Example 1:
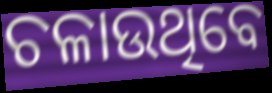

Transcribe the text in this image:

ଚଳାଉଥିବେ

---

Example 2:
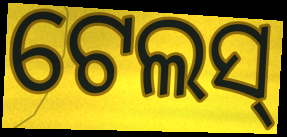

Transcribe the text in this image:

ଟେଲସ୍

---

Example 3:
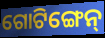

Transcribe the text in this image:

ଗୋଟିଙ୍ଗେନ୍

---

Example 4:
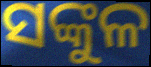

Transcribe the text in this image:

ସଙ୍କୁଳ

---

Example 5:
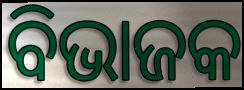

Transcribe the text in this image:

ବିଭାଜକ